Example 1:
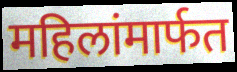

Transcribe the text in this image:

महिलांमार्फत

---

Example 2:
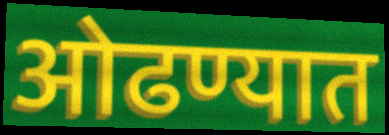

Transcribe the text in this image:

ओढण्यात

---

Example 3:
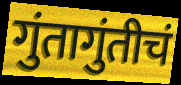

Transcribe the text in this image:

गुंतागुंतीचं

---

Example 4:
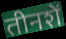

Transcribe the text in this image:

तीनशें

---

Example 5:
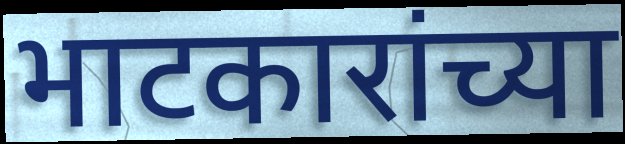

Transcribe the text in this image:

भाटकारांच्या